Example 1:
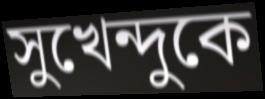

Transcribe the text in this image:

সুখেন্দুকে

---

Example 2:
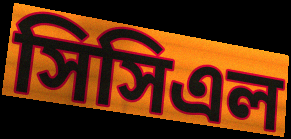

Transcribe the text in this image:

সিসিএল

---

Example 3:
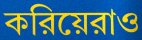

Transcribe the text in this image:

করিয়েরাও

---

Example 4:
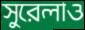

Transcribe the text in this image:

সুরেলাও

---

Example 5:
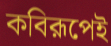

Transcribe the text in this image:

কবিরূপেই